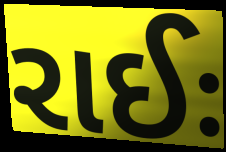
રાઈઃ